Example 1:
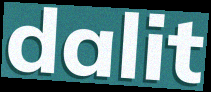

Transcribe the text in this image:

dalit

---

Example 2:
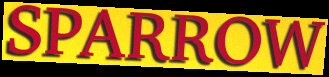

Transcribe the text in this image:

SPARROW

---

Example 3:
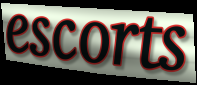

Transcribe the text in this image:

escorts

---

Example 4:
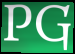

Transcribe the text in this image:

PG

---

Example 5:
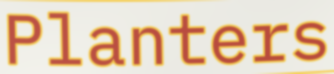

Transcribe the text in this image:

Planters